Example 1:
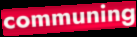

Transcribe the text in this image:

communing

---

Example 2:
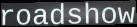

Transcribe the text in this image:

roadshow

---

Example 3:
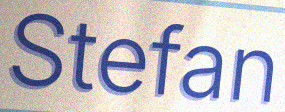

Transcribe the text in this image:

Stefan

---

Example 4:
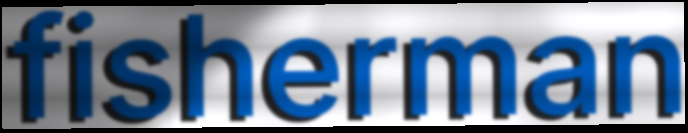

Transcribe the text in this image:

fisherman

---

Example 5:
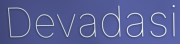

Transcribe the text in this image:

Devadasi